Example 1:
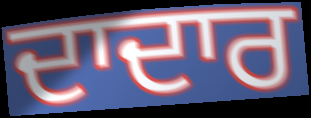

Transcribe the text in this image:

ਦਾਦਾਰ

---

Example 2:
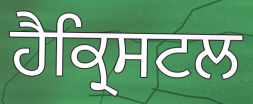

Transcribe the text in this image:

ਹੈਕ੍ਰਿਸਟਲ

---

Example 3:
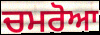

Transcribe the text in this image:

ਚਮਰੋਆ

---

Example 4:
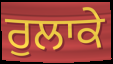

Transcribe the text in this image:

ਰੁਲਾਕੇ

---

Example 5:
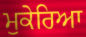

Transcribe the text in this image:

ਮੁਕੇਰਿਆ